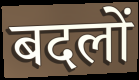
बदलों